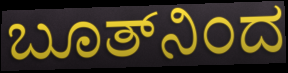
ಬೂತ್‌ನಿಂದ